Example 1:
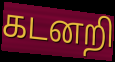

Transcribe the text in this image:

கடனறி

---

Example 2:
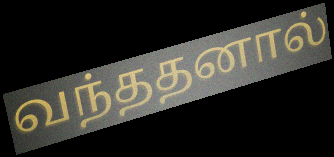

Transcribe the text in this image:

வந்ததனால்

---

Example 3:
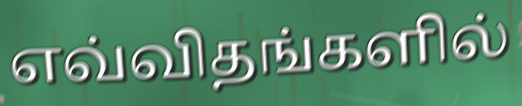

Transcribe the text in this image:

எவ்விதங்களில்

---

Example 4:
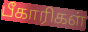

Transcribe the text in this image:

பீகாரிகள்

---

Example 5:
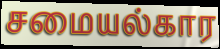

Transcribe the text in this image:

சமையல்கார